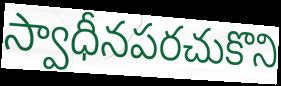
స్వాధీనపరచుకొని